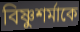
বিষ্ণুশর্মাকে